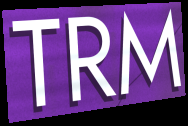
TRM